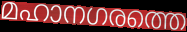
മഹാനഗരത്തെ